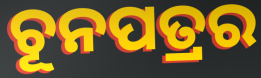
ଚୂନପତ୍ରର